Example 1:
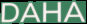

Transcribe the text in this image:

DAHA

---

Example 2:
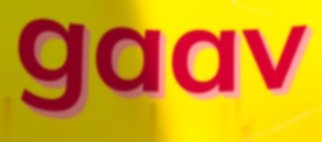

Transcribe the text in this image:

gaav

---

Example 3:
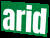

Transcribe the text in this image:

arid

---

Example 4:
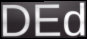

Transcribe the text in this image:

DEd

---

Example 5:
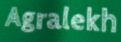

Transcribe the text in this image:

Agralekh